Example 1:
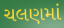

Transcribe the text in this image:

ચલણમાં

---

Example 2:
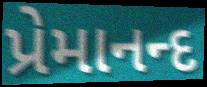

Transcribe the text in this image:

પ્રેમાનન્દ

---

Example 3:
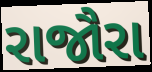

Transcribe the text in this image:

રાજૌરા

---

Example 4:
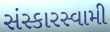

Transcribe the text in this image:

સંસ્કારસ્વામી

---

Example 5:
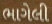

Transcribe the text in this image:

ભાગેલી